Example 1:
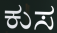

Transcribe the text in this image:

ಕುಸ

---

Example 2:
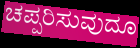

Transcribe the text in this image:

ಚಪ್ಪರಿಸುವುದೂ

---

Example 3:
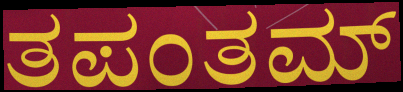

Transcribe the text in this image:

ತಪಂತಮ್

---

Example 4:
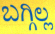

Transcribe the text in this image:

ಬಗ್ಗಿಲ್ಲ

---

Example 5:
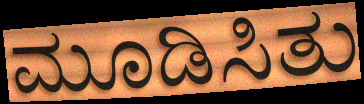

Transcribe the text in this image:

ಮೂಡಿಸಿತು